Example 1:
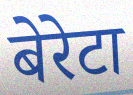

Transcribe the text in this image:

बेरेटा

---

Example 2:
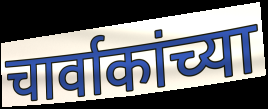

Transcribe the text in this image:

चार्वाकांच्या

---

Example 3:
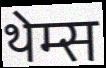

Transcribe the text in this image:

थेम्स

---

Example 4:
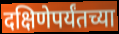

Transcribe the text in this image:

दक्षिणेपर्यंतच्या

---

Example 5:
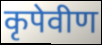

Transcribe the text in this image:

कृपेवीण